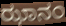
ಝಾನಂ